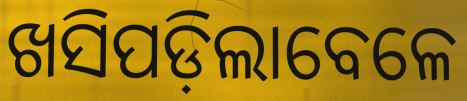
ଖସିପଡ଼ିଲାବେଳେ